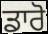
ਡਾਰੋ